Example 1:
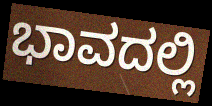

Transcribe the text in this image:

ಭಾವದಲ್ಲಿ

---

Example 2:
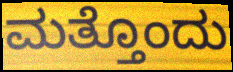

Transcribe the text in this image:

ಮತ್ತೊಂದು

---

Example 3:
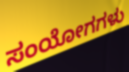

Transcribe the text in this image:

ಸಂಯೋಗಗಳು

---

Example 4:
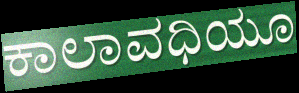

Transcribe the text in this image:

ಕಾಲಾವಧಿಯೂ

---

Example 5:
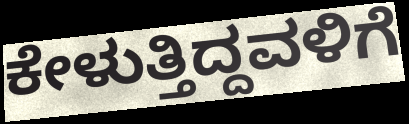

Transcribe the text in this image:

ಕೇಳುತ್ತಿದ್ದವಳಿಗೆ